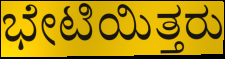
ಭೇಟಿಯಿತ್ತರು